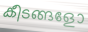
കീടങ്ങളോ